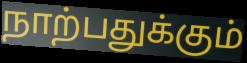
நாற்பதுக்கும்